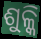
ଶୁଳ୍କି